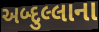
અબ્દુલ્લાના